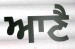
ਆਣੈ